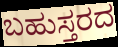
ಬಹುಸ್ತರದ